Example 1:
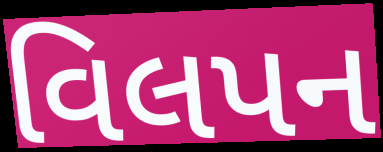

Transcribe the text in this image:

વિલપન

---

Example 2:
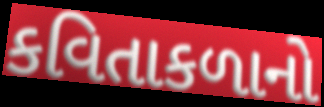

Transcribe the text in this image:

કવિતાકળાનો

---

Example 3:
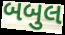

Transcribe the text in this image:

બબુલ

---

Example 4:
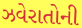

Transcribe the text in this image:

ઝવેરાતોની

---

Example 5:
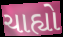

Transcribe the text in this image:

ચાહ્યો